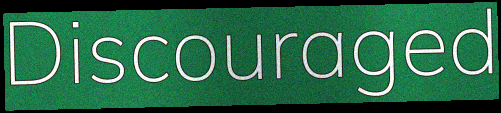
Discouraged